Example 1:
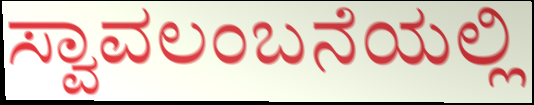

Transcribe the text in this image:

ಸ್ವಾವಲಂಬನೆಯಲ್ಲಿ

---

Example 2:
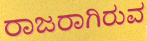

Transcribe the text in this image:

ರಾಜರಾಗಿರುವ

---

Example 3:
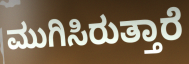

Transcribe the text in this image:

ಮುಗಿಸಿರುತ್ತಾರೆ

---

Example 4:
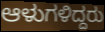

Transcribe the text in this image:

ಆಳುಗಳಿದ್ದರು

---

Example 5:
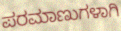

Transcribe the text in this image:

ಪರಮಾಣುಗಳಾಗಿ